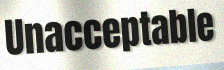
Unacceptable